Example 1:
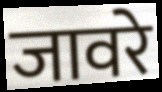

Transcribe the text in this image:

जावरे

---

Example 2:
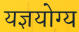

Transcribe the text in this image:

यज्ञयोग्य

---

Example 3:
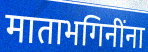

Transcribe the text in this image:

माताभगिनींना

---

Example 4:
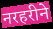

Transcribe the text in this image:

नरहरीने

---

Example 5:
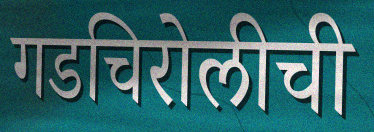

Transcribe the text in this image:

गडचिरोलीची